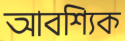
আবশ্যিক